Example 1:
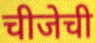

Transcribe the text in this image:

चीजेची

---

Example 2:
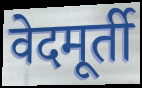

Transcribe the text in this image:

वेदमूर्ती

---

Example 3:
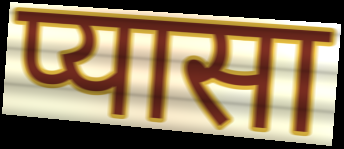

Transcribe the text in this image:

प्यासा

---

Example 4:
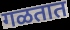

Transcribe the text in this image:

गळतात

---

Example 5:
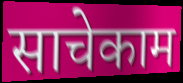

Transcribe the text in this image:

साचेकाम